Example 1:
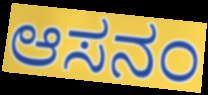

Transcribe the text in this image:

ಆಸನಂ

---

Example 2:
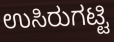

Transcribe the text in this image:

ಉಸಿರುಗಟ್ಟಿ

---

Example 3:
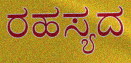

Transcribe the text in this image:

ರಹಸ್ಯದ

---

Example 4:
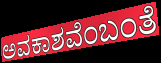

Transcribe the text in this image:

ಅವಕಾಶವೆಂಬಂತೆ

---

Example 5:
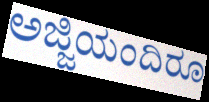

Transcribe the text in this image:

ಅಜ್ಜಿಯಂದಿರೂ